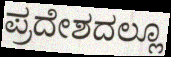
ಪ್ರದೇಶದಲ್ಲೂ